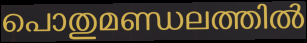
പൊതുമണ്ഡലത്തിൽ